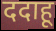
ददाहू